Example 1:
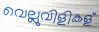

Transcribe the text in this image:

വെല്ലുവിളികള്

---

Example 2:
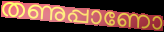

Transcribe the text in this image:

തണുപ്പാണോ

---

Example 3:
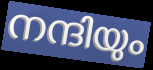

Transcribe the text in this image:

നന്ദിയും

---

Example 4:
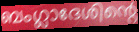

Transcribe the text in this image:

ബംഗ്ലാദേശിന്റെ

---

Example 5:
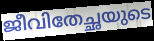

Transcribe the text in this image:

ജീവിതേച്ഛയുടെ